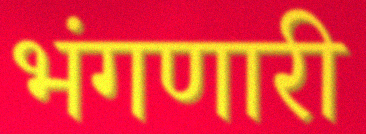
भंगणारी